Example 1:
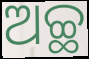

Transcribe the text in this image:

ଅଚ୍ଛ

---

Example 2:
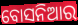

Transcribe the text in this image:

ବୋସନିଆର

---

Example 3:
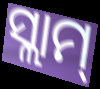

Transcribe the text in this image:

ସ୍ଲାମ୍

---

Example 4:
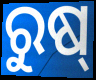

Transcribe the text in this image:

ରୁଷ୍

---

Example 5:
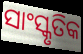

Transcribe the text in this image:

ସାଂସ୍କୃତିକ